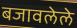
बजावलेले